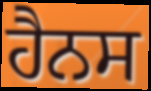
ਹੈਨਸ